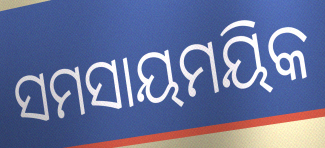
ସମସାୟମୟିକ